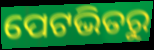
ପେଟଭିତରୁ